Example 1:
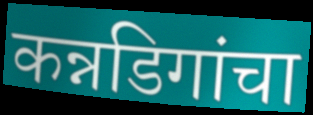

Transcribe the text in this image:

कन्नडिगांचा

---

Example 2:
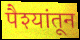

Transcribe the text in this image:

पैश्यांतून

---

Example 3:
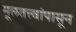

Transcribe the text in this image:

मूलतत्त्वांपासून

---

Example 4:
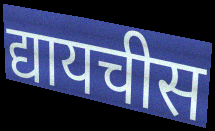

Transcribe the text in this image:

द्यायचीस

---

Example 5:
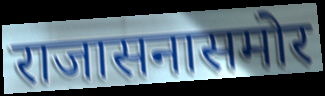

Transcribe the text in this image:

राजासनासमोर